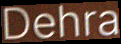
Dehra